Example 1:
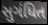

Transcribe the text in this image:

સુગંધિત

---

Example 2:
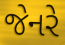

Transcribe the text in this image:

જેનરે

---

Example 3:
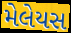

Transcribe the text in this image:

મેલેયસ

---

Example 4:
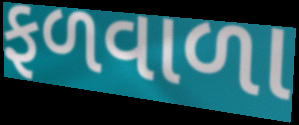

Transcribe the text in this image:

ફળવાળા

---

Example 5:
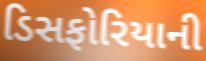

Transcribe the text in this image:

ડિસફોરિયાની